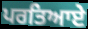
ਪਰਤਿਆਏ